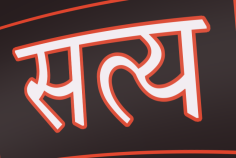
सत्य